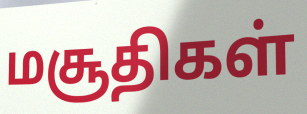
மசூதிகள்